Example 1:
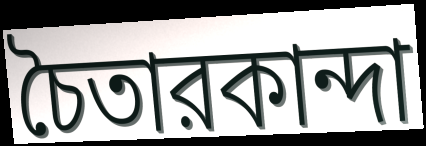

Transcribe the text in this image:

চৈতারকান্দা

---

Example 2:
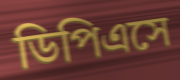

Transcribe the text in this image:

ডিপিএসে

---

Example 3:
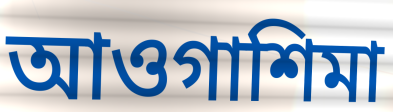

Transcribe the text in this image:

আওগাশিমা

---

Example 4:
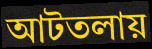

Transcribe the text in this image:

আটতলায়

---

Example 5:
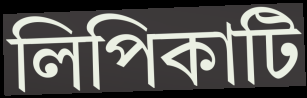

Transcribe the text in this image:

লিপিকাটি